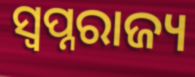
ସ୍ୱପ୍ନରାଜ୍ୟ